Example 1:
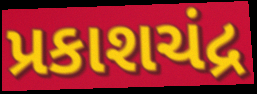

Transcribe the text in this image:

પ્રકાશચંદ્ર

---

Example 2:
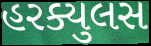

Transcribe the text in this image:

હરક્યુલસ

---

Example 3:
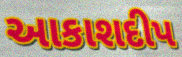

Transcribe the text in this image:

આકાશદીપ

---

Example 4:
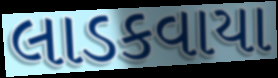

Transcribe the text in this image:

લાડકવાયા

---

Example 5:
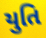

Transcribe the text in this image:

યુતિ